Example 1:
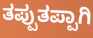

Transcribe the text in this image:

ತಪ್ಪುತಪ್ಪಾಗಿ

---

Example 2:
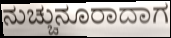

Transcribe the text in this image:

ನುಚ್ಚುನೂರಾದಾಗ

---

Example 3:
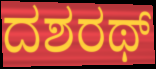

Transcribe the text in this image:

ದಶರಥ್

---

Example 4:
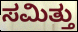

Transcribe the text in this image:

ಸಮಿತ್ತು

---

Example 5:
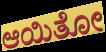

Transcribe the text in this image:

ಆಯಿತೋ